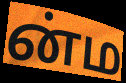
ன்ம